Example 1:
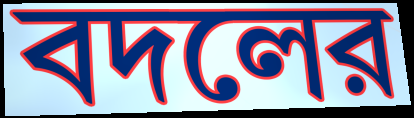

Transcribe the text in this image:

বদলের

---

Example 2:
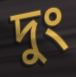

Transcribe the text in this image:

দুং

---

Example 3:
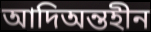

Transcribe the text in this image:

আদিঅন্তহীন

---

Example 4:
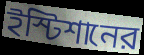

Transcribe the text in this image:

ইস্টিশানের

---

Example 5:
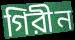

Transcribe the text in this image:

গিরীন